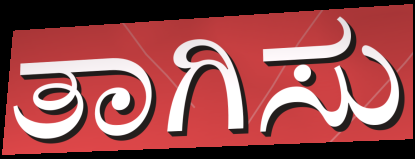
ತಾಗಿಸು